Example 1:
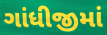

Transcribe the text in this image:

ગાંધીજીમાં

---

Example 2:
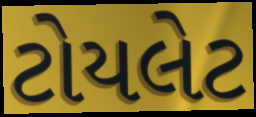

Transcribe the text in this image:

ટોયલેટ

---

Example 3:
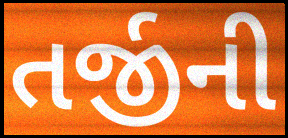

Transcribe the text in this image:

તર્જીની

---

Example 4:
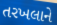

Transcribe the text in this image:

તરખલાને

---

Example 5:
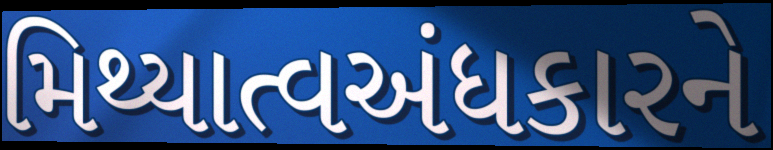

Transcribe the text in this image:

મિથ્યાત્વઅંધકારને